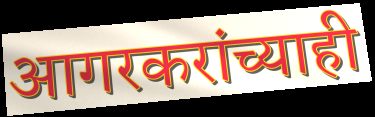
आगरकरांच्याही